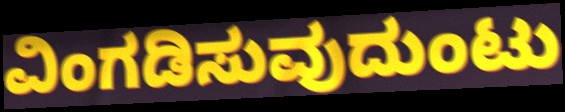
ವಿಂಗಡಿಸುವುದುಂಟು